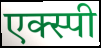
एक्स्पी